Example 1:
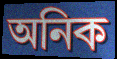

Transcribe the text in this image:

অনিক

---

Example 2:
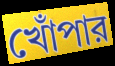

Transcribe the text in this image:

খোঁপার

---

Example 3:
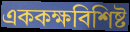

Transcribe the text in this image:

এককক্ষবিশিষ্ট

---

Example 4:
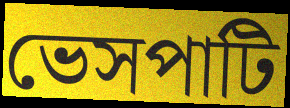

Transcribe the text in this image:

ভেসপাটি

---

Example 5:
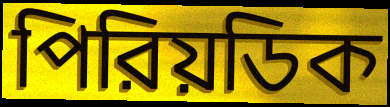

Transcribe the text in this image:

পিরিয়ডিক